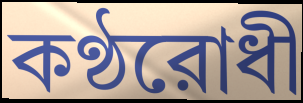
কণ্ঠরোধী